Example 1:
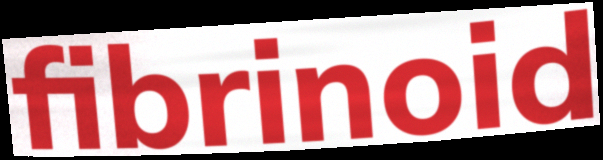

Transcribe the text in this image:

fibrinoid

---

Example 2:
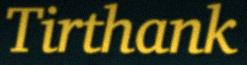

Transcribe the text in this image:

Tirthank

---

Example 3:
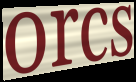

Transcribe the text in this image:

orcs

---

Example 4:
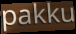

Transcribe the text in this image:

pakku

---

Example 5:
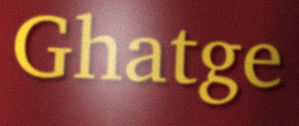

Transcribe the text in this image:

Ghatge